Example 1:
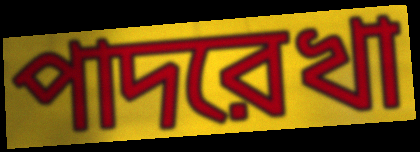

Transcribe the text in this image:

পাদরেখা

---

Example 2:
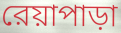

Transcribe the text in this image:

রেয়াপাড়া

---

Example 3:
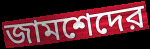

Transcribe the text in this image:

জামশেদের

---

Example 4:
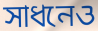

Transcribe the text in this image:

সাধনেও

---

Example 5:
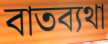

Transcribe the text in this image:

বাতব্যথা